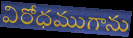
విరోధముగాను